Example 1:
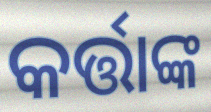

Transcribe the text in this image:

କର୍ତ୍ତାଙ୍କ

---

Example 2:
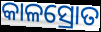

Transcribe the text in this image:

କାଳସ୍ରୋତ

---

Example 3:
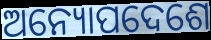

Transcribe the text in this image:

ଅନ୍ୟୋପଦେଶେ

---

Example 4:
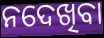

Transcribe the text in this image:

ନଦେଖିବା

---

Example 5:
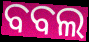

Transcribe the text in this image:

ବବଲ